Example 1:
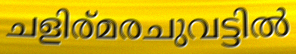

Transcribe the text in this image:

ചളിര്മരചുവട്ടിൽ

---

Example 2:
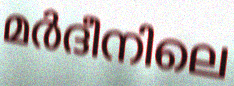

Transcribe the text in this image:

മർദീനിലെ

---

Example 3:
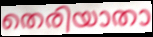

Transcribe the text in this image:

തെരിയാതാ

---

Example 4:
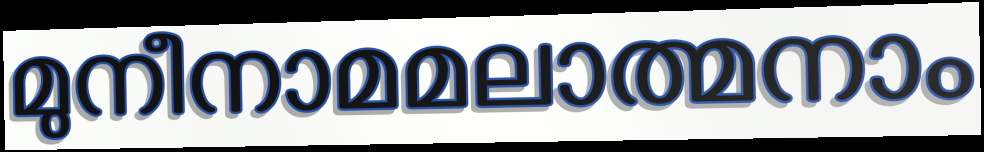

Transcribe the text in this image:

മുനീനാമമലാത്മനാം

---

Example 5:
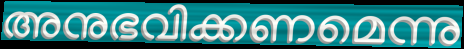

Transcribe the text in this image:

അനുഭവിക്കണമെന്നു